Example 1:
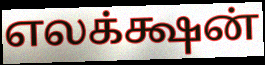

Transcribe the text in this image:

எலக்க்ஷன்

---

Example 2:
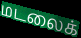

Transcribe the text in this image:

மடலைக்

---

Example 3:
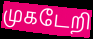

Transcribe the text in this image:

முகடேறி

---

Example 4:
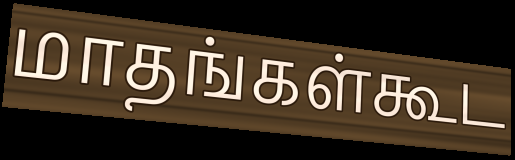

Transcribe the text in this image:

மாதங்கள்கூட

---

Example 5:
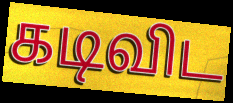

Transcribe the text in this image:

கடிவிட